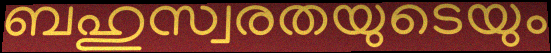
ബഹുസ്വരതയുടെയും